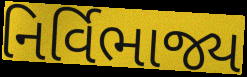
નિર્વિભાજ્ય